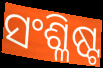
ସଂଶ୍ଳିଷ୍ଟ